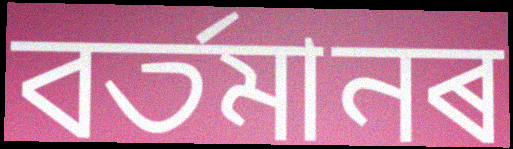
বৰ্তমানৰ